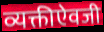
व्यक्तीऐवजी